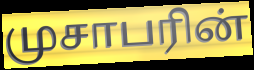
முசாபரின்